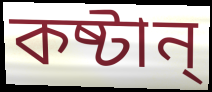
কষ্টান্